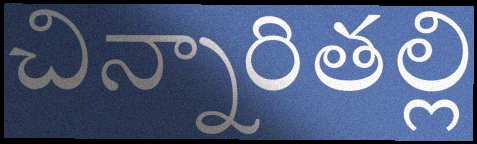
చిన్నారితల్లి